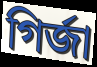
গির্জা